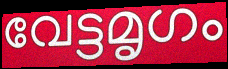
വേട്ടമൃഗം